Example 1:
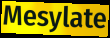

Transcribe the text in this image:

Mesylate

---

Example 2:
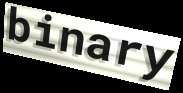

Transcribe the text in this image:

binary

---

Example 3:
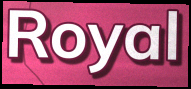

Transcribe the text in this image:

Royal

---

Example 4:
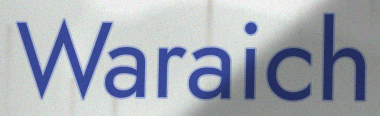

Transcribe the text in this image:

Waraich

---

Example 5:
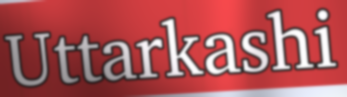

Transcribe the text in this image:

Uttarkashi